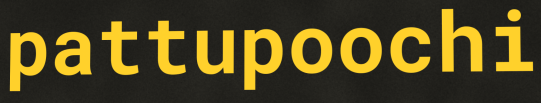
pattupoochi